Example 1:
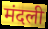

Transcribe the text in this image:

मंदली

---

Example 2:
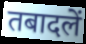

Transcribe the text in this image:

तबादलें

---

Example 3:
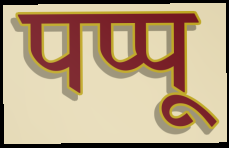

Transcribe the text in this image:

पप्‍पू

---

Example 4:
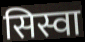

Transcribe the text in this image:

सिस्वा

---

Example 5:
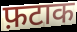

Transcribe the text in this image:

फ़टाक